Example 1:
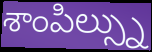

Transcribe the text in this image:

శాంపిల్స్ను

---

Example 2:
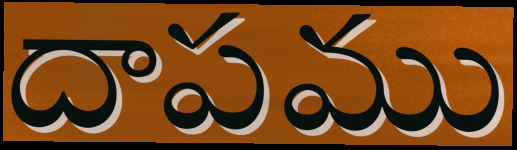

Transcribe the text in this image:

దాపము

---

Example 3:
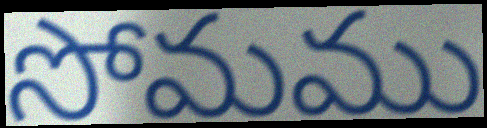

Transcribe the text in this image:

సోమము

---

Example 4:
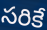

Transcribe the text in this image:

సరికే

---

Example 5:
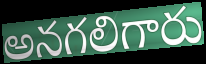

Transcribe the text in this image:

అనగలిగారు